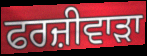
ਫਰਜ਼ੀਵਾਡ਼ਾ